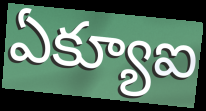
ఏక్యూఐ